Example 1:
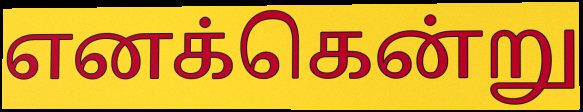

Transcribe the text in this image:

எனக்கென்று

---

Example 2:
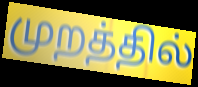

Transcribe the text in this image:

முறத்தில்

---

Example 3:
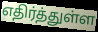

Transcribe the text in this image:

எதிர்த்துள்ள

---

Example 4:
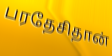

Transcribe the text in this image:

பரதேசிதான்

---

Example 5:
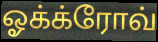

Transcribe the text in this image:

ஓக்க்ரோவ்